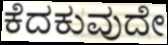
ಕೆದಕುವುದೇ